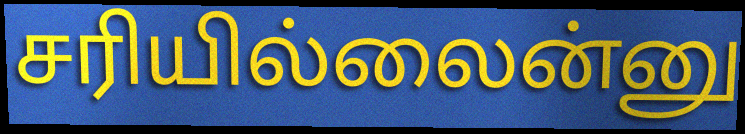
சரியில்லைன்னு